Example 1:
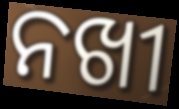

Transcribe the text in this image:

ନଖୀ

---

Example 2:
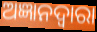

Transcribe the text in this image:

ଅଜ୍ଞାନଦ୍ଵାରା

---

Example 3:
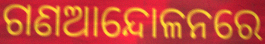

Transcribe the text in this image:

ଗଣଆନ୍ଦୋଳନରେ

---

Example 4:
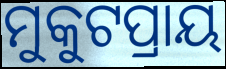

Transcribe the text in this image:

ମୁକୁଟପ୍ରାୟ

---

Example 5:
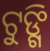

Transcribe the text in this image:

ଟୁଙ୍ଗି